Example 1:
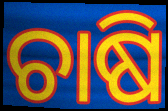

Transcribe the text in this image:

ଚାଷି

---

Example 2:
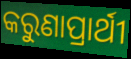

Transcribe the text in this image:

କରୁଣାପ୍ରାର୍ଥୀ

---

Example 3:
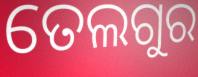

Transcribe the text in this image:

ତେଲଗୁର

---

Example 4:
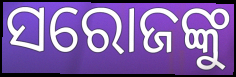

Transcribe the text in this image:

ସରୋଜଙ୍କୁ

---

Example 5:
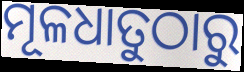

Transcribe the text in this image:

ମୂଳଧାତୁଠାରୁ